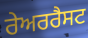
ਰੇਅਰਰੈਸਟ